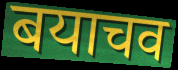
बयाचव